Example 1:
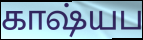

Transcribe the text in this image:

காஷ்யப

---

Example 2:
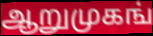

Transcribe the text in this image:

ஆறுமுகங்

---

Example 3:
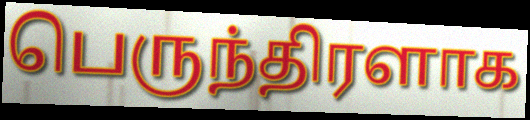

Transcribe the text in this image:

பெருந்திரளாக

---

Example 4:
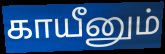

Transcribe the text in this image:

காயீனும்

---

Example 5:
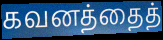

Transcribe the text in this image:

கவனத்தைத்